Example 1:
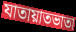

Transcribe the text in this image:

যাতায়াতভাতা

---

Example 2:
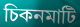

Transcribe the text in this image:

চিকনমাটি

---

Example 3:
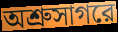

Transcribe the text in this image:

অশ্রুসাগরে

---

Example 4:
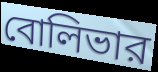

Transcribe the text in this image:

বোলিভার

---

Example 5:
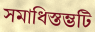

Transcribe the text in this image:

সমাধিস্তম্ভটি